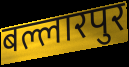
बल्लारपुर